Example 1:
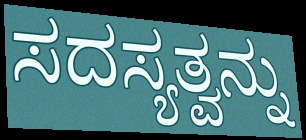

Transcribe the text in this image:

ಸದಸ್ಯತ್ವನ್ನು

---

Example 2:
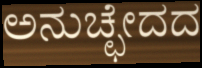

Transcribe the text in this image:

ಅನುಚ್ಛೇದದ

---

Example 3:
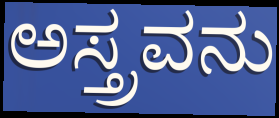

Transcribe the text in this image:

ಅಸ್ತ್ರವನು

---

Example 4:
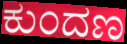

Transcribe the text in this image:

ಕುಂದಣ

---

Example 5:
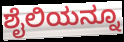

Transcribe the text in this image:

ಶೈಲಿಯನ್ನೂ